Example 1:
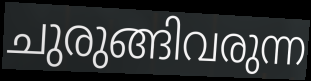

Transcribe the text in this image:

ചുരുങ്ങിവരുന്ന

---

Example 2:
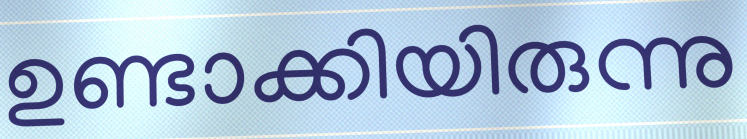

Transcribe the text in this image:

ഉണ്ടാക്കിയിരുന്നു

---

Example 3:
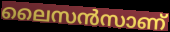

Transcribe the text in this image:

ലൈസൻസാണ്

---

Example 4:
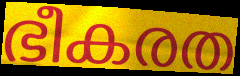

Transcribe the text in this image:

ഭീകരത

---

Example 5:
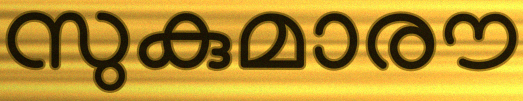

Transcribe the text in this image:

സുകുമാരൗ